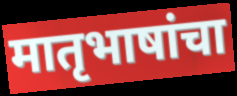
मातृभाषांचा